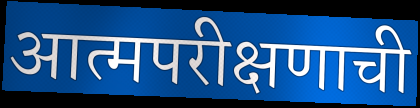
आत्मपरीक्षणाची